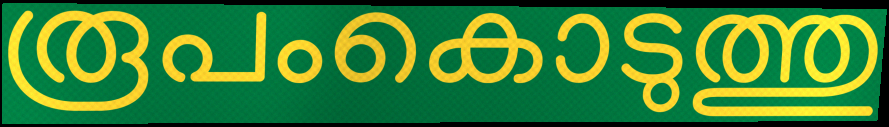
രൂപംകൊടുത്തു